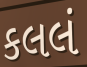
કલલં